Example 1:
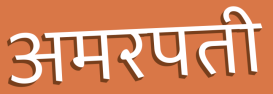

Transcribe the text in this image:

अमरपती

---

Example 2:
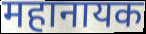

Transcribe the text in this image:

महानायक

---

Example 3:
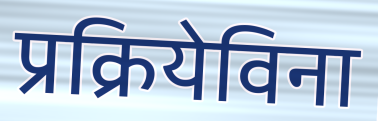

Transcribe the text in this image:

प्रक्रियेविना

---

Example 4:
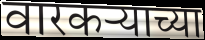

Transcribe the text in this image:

वारकऱ्याच्या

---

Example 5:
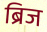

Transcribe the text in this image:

ब्रिज